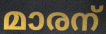
മാരന്